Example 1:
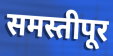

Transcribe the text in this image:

समस्तीपूर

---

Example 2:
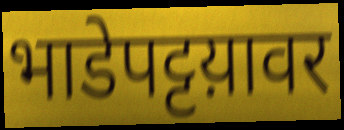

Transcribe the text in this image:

भाडेपट्टय़ावर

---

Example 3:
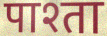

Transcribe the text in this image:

पाश्ता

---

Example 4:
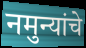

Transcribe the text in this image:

नमुन्यांचे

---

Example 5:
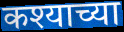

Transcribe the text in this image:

कश्याच्या